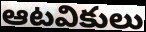
ఆటవికులు